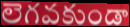
లెగవకుండా